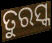
ତୁରସ୍କ